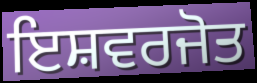
ਇਸ਼ਵਰਜੋਤ